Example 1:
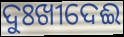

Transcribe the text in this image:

ଦୁଃଖୀଦେଈ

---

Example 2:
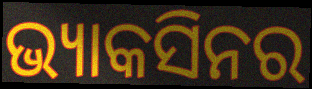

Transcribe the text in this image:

ଭ୍ୟାକସିନର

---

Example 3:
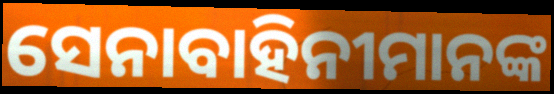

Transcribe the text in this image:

ସେନାବାହିନୀମାନଙ୍କ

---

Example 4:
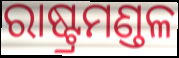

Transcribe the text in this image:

ରାଷ୍ଟ୍ରମଣ୍ଡଳ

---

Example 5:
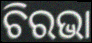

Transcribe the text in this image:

ଚିରଭା